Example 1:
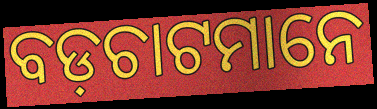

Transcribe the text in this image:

ବଡ଼ଚାଟମାନେ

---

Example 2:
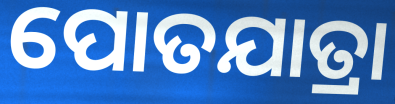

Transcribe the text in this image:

ପୋତଯାତ୍ରା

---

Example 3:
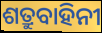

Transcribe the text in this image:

ଶତ୍ରୁବାହିନୀ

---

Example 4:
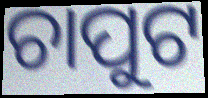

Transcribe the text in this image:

ଚାପୁଟ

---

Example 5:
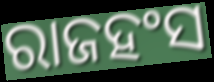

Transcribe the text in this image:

ରାଜହଂସ